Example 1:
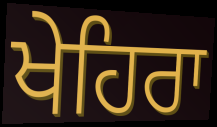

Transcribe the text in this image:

ਖੇਹਿਰਾ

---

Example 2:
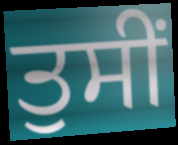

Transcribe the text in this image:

ਤੁਸੀਂ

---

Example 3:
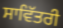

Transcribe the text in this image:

ਸਾਵਿੱਤਰੀ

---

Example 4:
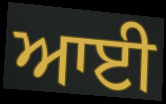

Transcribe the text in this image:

ਆਈ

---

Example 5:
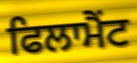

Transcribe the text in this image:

ਫਿਲਾਮੈਂਟ